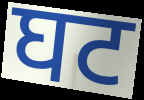
घट